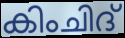
കിംചിദ്